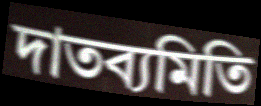
দাতব্যমিতি